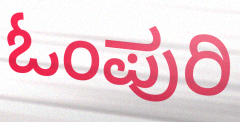
ಓಂಪುರಿ